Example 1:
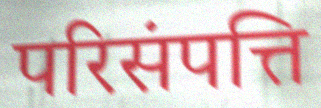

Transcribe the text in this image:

परिसंपत्ति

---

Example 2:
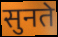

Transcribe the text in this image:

सुनते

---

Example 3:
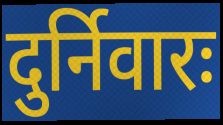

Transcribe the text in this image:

दुर्निवारः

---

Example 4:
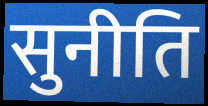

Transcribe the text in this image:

सुनीति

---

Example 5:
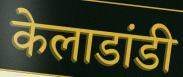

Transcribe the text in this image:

केलाडांडी